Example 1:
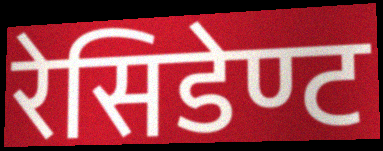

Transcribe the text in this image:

रेसिडेण्ट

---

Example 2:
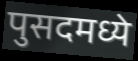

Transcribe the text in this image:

पुसदमध्ये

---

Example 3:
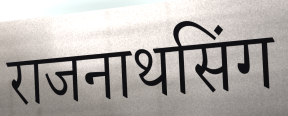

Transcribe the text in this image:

राजनाथसिंग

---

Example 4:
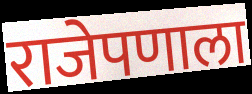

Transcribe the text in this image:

राजेपणाला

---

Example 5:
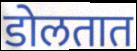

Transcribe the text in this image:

डोलतात